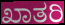
ಖಾತರಿ